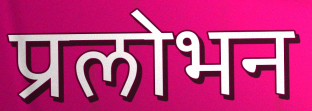
प्रलोभन